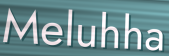
Meluhha